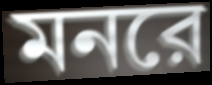
মনরে